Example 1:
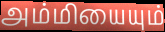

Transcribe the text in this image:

அம்மியையும்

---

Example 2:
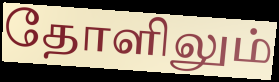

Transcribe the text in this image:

தோளிலும்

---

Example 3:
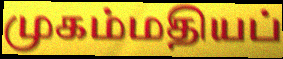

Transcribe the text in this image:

முகம்மதியப்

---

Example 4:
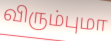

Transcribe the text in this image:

விரும்புமா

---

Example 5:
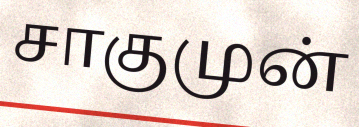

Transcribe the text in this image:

சாகுமுன்